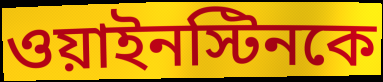
ওয়াইনস্টিনকে